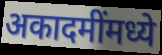
अकादमींमध्ये